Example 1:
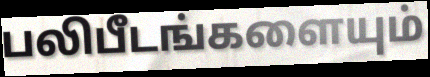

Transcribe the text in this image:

பலிபீடங்களையும்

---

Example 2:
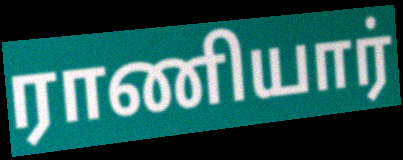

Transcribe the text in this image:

ராணியார்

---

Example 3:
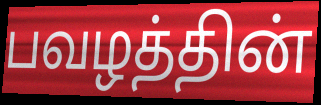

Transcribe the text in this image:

பவழத்தின்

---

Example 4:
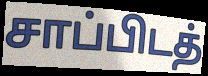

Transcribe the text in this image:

சாப்பிடத்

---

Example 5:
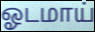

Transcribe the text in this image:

ஓடமாய்